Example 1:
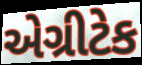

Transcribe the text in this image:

એગ્રીટેક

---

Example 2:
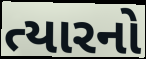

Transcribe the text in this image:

ત્યારનો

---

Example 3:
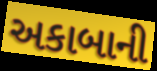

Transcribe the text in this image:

અકાબાની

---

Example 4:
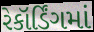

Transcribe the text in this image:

રેકૉર્ડિંગમાં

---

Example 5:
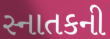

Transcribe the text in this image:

સ્નાતકની